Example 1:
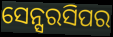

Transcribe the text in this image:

ସେନ୍ସରସିପର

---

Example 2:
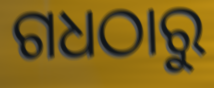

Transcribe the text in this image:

ଗଧଠାରୁ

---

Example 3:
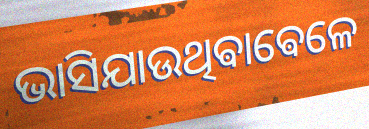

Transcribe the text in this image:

ଭାସିଯାଉଥିଵାଵେଳେ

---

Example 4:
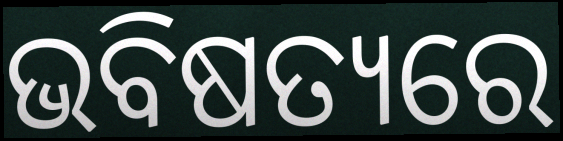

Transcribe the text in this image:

ଭବିଷତ୍ୟରେ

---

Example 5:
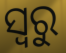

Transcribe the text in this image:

ସ୍ୱରୁ